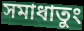
সমাধাতুং